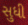
સુધી